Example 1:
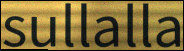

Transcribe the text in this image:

sullalla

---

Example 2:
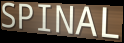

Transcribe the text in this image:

SPINAL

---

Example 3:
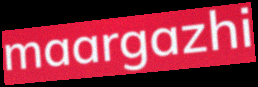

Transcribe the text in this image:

maargazhi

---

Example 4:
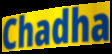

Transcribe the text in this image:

Chadha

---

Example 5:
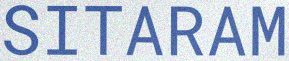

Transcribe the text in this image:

SITARAM